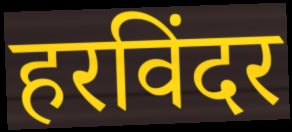
हरविंदर